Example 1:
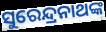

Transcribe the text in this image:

ସୁରେନ୍ଦ୍ରନାଥଙ୍କ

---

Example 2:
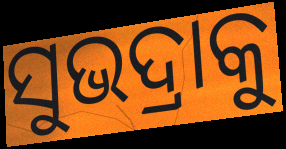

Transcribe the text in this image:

ସୁଭଦ୍ରାକୁ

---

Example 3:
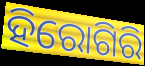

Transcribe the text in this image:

ହିରୋଗିରି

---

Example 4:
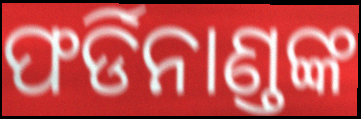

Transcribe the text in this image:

ଫର୍ଡିନାଣ୍ଡଙ୍କ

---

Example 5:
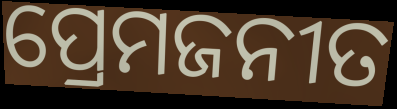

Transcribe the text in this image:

ପ୍ରେମଜନୀତ